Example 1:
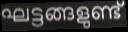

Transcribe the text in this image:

ഘട്ടങ്ങളുണ്ട്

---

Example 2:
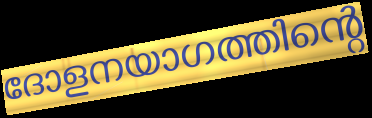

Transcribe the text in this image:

ദോളനയാഗത്തിന്റെ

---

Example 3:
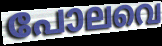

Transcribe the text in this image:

പോലവെ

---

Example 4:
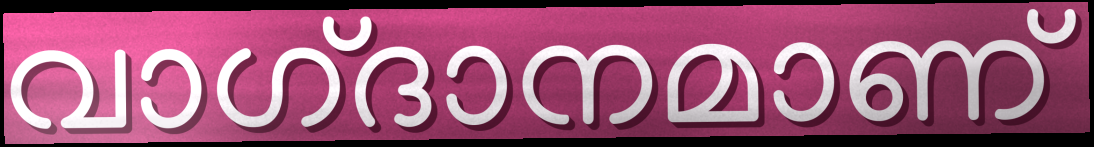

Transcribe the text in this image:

വാഗ്‌ദാനമാണ്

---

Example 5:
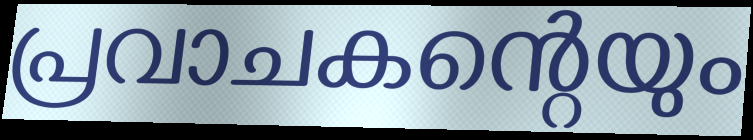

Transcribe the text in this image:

പ്രവാചകന്റെയും